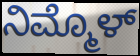
ನಿಮ್ಮೊಳ್